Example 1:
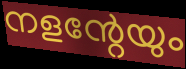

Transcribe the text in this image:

നളന്റേയും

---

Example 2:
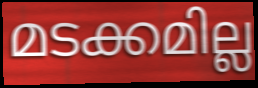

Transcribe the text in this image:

മടക്കമില്ല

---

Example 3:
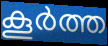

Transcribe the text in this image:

കൂർത്ത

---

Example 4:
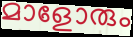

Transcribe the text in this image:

മാളോരും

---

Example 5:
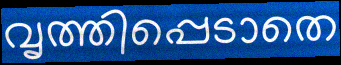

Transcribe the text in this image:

വൃത്തിപ്പെടാതെ